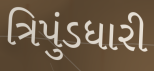
ત્રિપુંડધારી